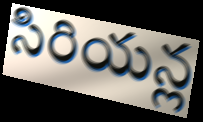
సిరియన్ల